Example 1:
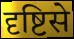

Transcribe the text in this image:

दृष्टिसे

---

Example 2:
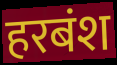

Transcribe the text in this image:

हरबंश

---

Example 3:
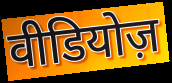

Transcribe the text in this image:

वीडियोज़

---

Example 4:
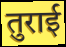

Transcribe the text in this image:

तुराई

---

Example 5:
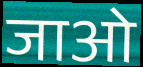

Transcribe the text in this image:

जाओ